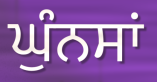
ਘੁੰਨਸਾਂ